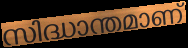
സിദ്ധാന്തമാണ്